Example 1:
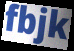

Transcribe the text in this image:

fbjk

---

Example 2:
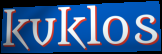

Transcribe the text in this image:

kuklos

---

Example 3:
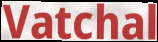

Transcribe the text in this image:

Vatchal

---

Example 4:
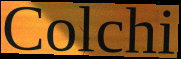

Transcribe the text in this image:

Colchi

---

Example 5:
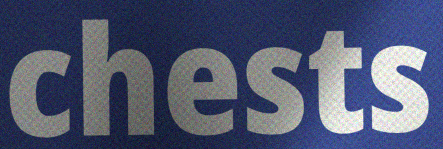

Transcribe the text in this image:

chests